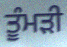
ਤੂੰਮੜੀ